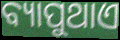
ବ୍ୟାପୁଥାଏ